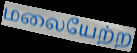
மலையேற்ற